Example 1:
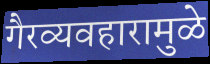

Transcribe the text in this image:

गैरव्यवहारामुळे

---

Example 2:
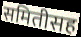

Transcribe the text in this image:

समितीसह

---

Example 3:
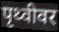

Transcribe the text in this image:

पृथ्वीवर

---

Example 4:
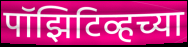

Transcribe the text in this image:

पॉझिटिव्हच्या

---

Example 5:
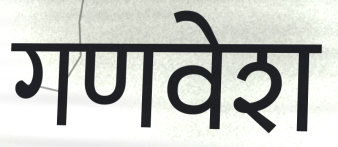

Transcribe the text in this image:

गणवेश